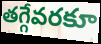
తగ్గేవరకూ